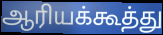
ஆரியக்கூத்து